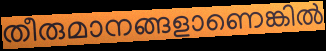
തീരുമാനങ്ങളാണെങ്കിൽ